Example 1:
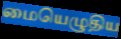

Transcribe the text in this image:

மையெழுதிய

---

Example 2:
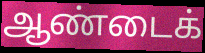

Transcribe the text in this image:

ஆண்டைக்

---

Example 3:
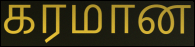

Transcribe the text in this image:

கரமான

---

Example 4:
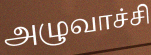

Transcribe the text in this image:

அழுவாச்சி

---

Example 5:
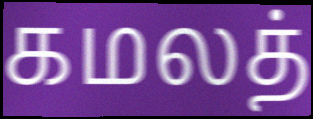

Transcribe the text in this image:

கமலத்